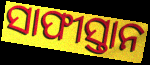
ସାଫୀସ୍ତାନ